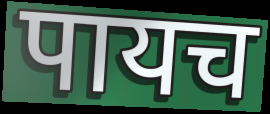
पायच